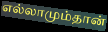
எல்லாமும்தான்